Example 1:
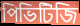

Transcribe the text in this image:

পিভিটিজি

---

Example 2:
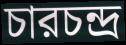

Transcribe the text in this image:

চারচন্দ্র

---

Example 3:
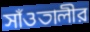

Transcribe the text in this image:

সাঁওতালীর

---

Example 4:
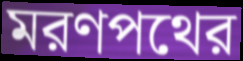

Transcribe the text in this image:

মরণপথের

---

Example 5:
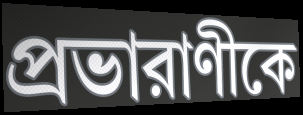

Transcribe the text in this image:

প্রভারাণীকে